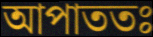
আপাততঃ